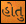
હોતુ